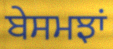
ਬੇਸਮਝਾਂ